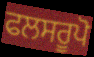
ਫਲਸਰੂਪੋ